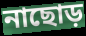
নাছোড়